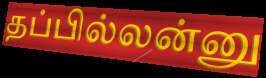
தப்பில்லன்னு